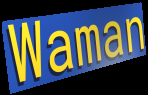
Waman